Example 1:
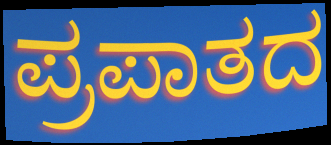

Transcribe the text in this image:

ಪ್ರಪಾತದ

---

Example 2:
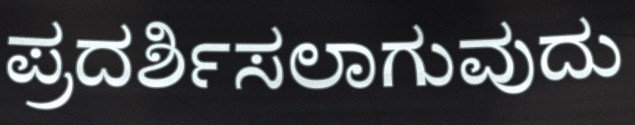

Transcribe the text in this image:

ಪ್ರದರ್ಶಿಸಲಾಗುವುದು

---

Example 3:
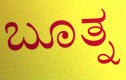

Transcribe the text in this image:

ಬೂತ್ನ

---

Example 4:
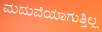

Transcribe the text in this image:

ಮದುವೆಯಾಗುತ್ತಿಲ್ಲ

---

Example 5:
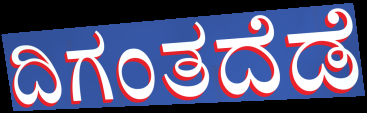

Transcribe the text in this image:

ದಿಗಂತದೆಡೆ